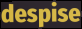
despise